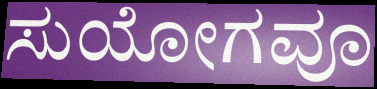
ಸುಯೋಗವೂ